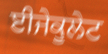
ਈਜੇਕੂਲੇਟ